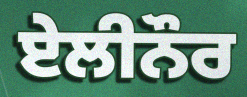
ਏਲੀਨੌਰ